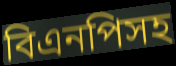
বিএনপিসহ